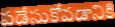
పడేసుకోవడానికి